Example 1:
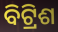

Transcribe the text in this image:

ବିଟ୍ରିଶ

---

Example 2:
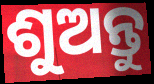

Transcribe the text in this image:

ଶୁଅନ୍ତୁ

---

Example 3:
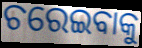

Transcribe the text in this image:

ଚରେଇବାକୁ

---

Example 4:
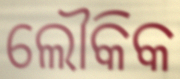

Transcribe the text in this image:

ଲୌକିକ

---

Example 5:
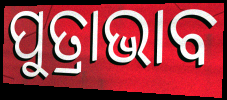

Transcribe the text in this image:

ପୁତ୍ରାଭାବ